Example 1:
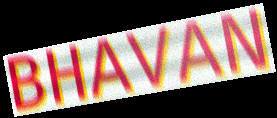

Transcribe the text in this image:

BHAVAN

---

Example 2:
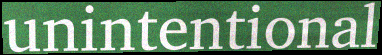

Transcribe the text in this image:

unintentional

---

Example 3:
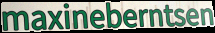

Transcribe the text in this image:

maxineberntsen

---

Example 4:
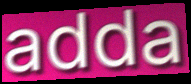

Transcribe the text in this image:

adda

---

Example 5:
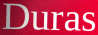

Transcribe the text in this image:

Duras